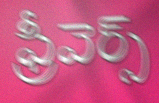
ఫ్రీవెర్స్